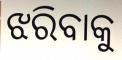
ଝରିବାକୁ